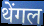
थेंगल